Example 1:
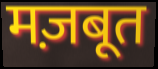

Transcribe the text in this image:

मज़बूत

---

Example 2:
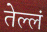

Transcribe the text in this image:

तेल्लं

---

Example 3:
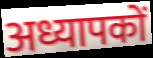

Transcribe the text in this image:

अध्यापकों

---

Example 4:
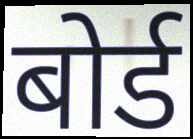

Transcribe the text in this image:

बोर्ड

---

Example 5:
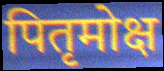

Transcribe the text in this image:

पितृमोक्ष